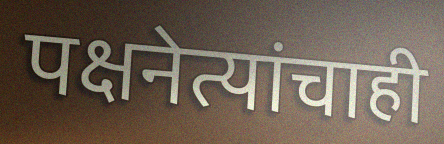
पक्षनेत्यांचाही